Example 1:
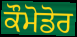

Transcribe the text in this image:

ਕੌਮੋਡੋਰ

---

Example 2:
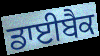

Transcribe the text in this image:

ਡਾਈਬੈਕ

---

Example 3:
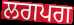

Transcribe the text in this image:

ਲਗਪਗ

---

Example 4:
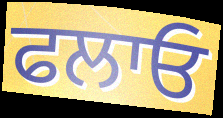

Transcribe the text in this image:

ਫਲਾਓ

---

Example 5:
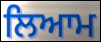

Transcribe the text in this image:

ਲਿਆਮ